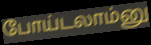
போய்டலாம்னு